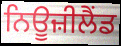
ਨਿਊਜ਼ੀਲੈਂਡ